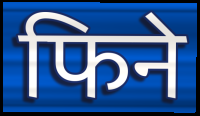
फिने